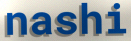
nashi